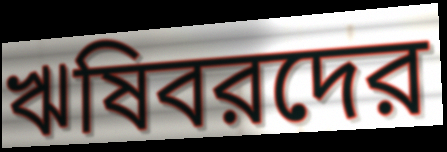
ঋষিবরদের